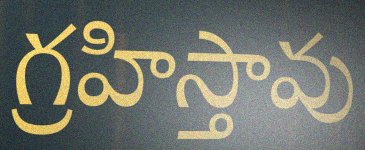
గ్రహిస్తావు